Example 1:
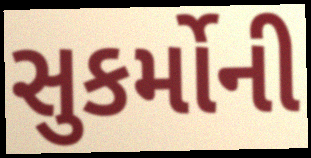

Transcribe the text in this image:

સુકર્મોની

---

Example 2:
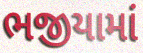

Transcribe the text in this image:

ભજીયામાં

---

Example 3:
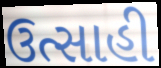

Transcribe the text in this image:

ઉત્સાહી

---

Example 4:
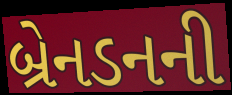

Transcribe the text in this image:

બ્રેનડનની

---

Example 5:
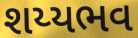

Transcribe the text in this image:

શય્યભવ